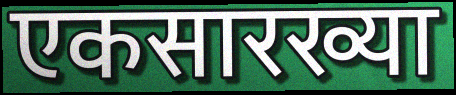
एकसारख्या